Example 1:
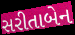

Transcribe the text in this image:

સરીતાબેન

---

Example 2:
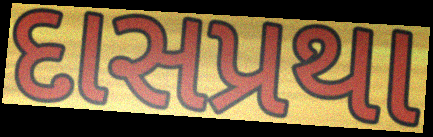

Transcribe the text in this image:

દાસપ્રથા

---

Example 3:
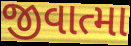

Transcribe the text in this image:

જીવાત્મા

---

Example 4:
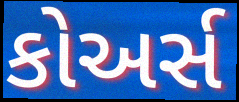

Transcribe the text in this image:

કોઅર્સ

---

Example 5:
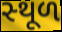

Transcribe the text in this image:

સ્‍થૂળ